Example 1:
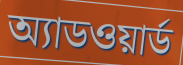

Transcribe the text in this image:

অ্যাডওয়ার্ড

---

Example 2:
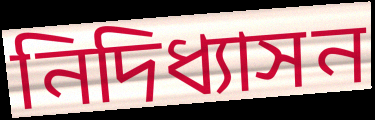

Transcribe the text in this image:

নিদিধ্যাসন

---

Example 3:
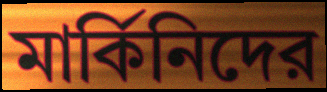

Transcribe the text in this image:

মার্কিনিদের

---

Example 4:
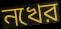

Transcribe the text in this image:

নখের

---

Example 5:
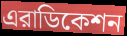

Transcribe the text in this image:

এরাডিকেশন